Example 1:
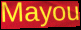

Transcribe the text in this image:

Mayou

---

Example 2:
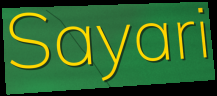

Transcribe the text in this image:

Sayari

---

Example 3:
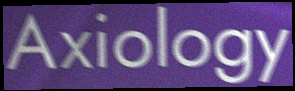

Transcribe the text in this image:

Axiology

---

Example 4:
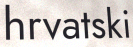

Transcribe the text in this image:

hrvatski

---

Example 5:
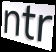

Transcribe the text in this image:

ntr